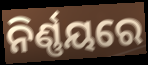
ନିର୍ଣ୍ଣୟରେ